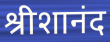
श्रीशानंद